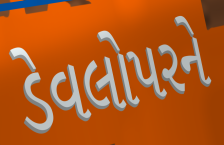
ડેવલોપરને